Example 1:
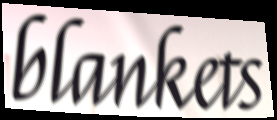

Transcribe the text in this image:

blankets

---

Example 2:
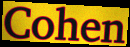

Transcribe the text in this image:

Cohen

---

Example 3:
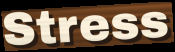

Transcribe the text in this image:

Stress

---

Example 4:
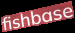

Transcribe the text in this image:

fishbase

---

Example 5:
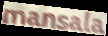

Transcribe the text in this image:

mansala